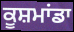
ਕੂਸ਼ਮਾਂਡਾ